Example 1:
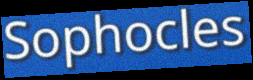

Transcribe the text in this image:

Sophocles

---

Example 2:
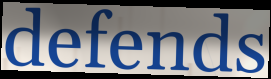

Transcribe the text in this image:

defends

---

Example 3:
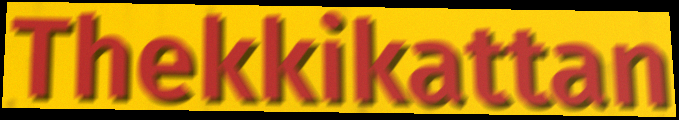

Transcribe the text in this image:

Thekkikattan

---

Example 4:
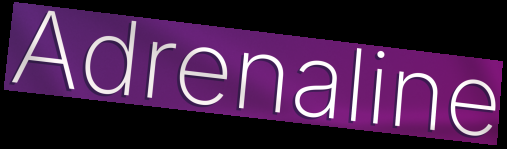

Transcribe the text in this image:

Adrenaline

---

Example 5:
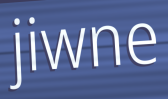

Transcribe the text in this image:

jiwne